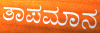
ತಾಪಮಾನ